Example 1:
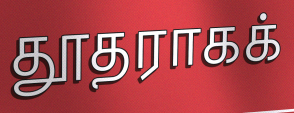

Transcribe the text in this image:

தூதராகக்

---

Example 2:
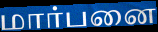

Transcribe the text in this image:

மார்பனை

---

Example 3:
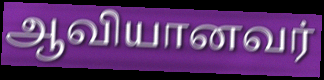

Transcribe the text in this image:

ஆவியானவர்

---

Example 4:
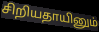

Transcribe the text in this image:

சிறியதாயினும்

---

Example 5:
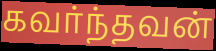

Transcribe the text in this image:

கவர்ந்தவன்